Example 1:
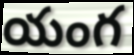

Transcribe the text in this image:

యంగ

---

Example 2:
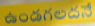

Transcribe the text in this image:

ఉండగలదనే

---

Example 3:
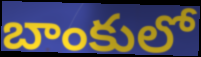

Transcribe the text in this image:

బాంకులో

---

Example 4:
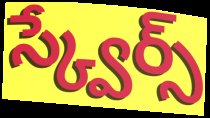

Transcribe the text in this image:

స్క్వేర్స్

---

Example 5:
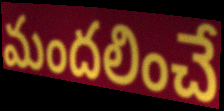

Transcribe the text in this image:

మందలించే